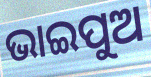
ଭାଇପୁଅ